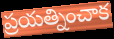
ప్రయత్నించాక